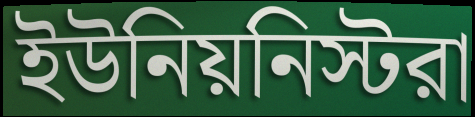
ইউনিয়নিস্টরা